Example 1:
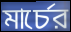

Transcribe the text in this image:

মার্চের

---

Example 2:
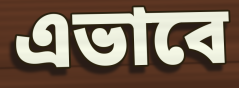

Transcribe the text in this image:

এভাবে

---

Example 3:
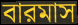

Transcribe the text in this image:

বারমাস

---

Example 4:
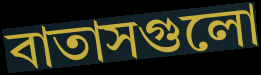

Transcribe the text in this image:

বাতাসগুলো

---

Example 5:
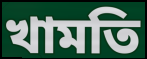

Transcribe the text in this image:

খামতি